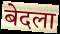
बेदला